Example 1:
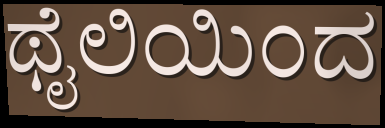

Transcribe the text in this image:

ಥೈಲಿಯಿಂದ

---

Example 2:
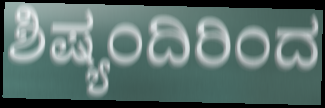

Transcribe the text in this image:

ಶಿಷ್ಯಂದಿರಿಂದ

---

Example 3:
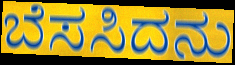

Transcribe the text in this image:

ಬೆಸಸಿದನು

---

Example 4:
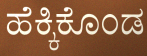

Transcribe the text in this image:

ಹೆಕ್ಕಿಕೊಂಡ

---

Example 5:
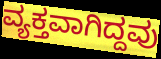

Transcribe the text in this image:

ವ್ಯಕ್ತವಾಗಿದ್ದವು